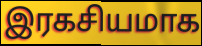
இரகசியமாக